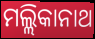
ମଲ୍ଲିକାନାଥ